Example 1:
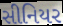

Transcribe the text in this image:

સીનિયર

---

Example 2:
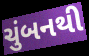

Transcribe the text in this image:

ચુંબનથી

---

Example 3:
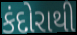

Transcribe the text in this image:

કંદોરાથી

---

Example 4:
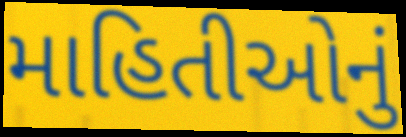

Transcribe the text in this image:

માહિતીઓનું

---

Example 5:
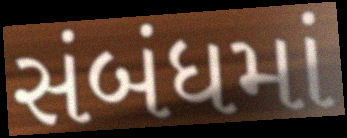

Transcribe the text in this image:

સંબંધમાં